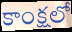
కాంక్షలో